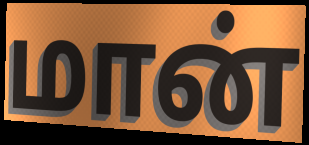
மான்